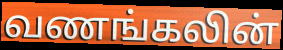
வணங்கலின்